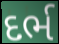
દર્ભ